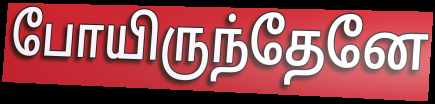
போயிருந்தேனே